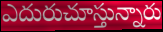
ఎదురుచూస్తున్నారు